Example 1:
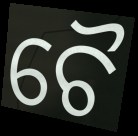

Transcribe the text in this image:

ଚୈ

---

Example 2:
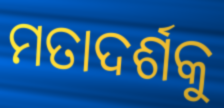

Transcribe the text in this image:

ମତାଦର୍ଶକୁ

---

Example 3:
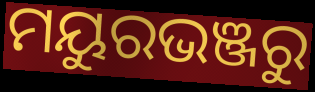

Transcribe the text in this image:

ମୟୁରଭଞ୍ଜରୁ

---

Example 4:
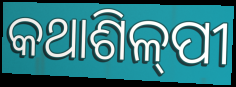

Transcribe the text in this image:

କଥାଶିଳ୍‌ପୀ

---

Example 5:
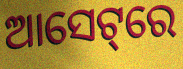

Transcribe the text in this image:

ଆସେଟ୍‌ରେ